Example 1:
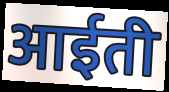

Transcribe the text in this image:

आईती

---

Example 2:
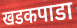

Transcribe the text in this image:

खडकपाडा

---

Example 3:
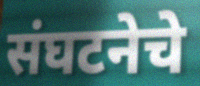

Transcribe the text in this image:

संघटनेचे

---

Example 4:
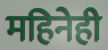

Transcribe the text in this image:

महिनेही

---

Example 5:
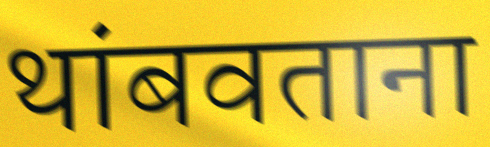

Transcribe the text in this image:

थांबवताना